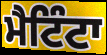
ਮੈਟਿੰਟਾ